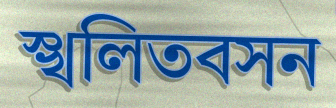
স্খলিতবসন